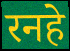
रनहे